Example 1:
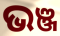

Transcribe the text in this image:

ଭଞ୍ଜ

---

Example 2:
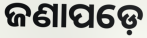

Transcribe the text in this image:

ଜଣାପଡ଼େ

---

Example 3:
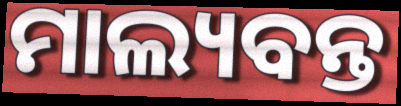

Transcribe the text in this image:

ମାଲ୍ୟବନ୍ତ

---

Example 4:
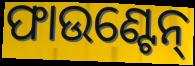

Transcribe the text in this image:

ଫାଉଣ୍ଟେନ୍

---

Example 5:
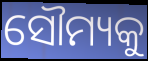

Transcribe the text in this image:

ସୌମ୍ୟକୁ